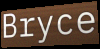
Bryce